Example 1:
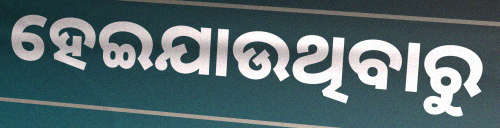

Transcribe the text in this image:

ହେଇଯାଉଥିବାରୁ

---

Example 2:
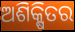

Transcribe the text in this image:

ଅଶିକ୍ଷିତର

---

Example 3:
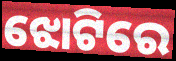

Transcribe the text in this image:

ଝୋଟିରେ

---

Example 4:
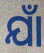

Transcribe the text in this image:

ଯାଁ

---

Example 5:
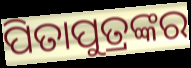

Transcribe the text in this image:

ପିତାପୁତ୍ରଙ୍କର